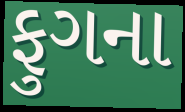
ફુગના